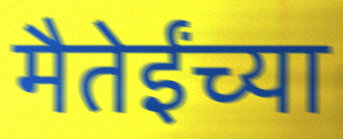
मैतेईंच्या